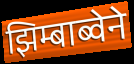
झिम्बाब्वेने